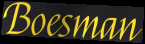
Boesman